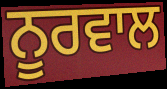
ਨੂਰਵਾਲ